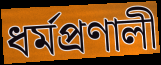
ধর্মপ্রণালী